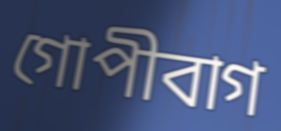
গোপীবাগ